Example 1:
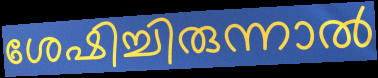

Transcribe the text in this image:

ശേഷിച്ചിരുന്നാൽ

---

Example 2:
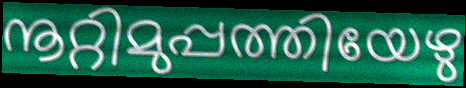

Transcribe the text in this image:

നൂറ്റിമുപ്പത്തിയേഴു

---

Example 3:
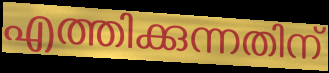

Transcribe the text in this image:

എത്തിക്കുന്നതിന്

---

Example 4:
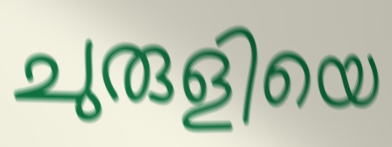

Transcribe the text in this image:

ചുരുളിയെ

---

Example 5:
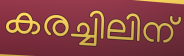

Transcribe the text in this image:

കരച്ചിലിന്